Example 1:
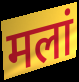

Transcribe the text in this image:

मलां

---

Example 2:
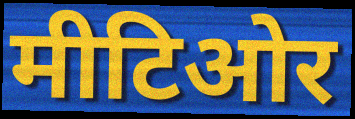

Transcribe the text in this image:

मीटिओर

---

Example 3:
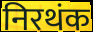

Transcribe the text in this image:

निरथंक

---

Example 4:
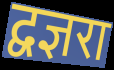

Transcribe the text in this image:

द्वज्ञरा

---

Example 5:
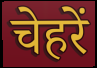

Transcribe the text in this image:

चेहरें